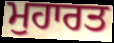
ਮੁਹਾਰਤ